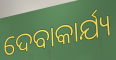
ଦେବାକାର୍ଯ୍ୟ